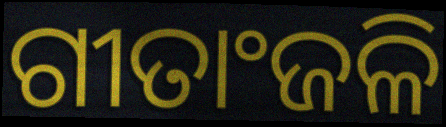
ଗୀତାଂଜଳି